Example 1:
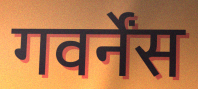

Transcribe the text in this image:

गवर्नेंस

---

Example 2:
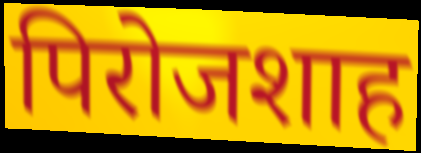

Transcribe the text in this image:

पिरोजशाह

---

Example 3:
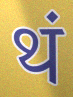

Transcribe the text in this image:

थं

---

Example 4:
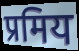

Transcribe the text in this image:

प्रमिय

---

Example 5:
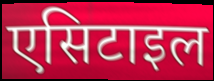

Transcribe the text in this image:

एसिटाइल